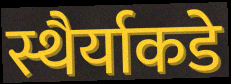
स्थैर्याकडे